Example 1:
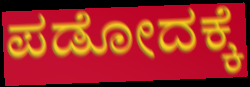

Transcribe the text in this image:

ಪಡೋದಕ್ಕೆ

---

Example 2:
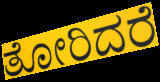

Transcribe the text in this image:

ತೋರಿದರೆ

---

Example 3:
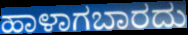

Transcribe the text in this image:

ಹಾಳಾಗಬಾರದು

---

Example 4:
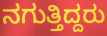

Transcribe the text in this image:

ನಗುತ್ತಿದ್ದರು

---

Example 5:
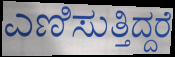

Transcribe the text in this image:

ಎಣಿಸುತ್ತಿದ್ದರೆ